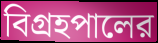
বিগ্রহপালের